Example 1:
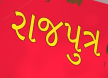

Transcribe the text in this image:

રાજપુત્ર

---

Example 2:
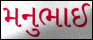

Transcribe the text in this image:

મનુભાઈ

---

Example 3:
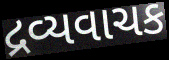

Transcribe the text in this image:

દ્રવ્યવાચક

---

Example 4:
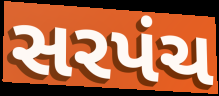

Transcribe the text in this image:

સરપંચ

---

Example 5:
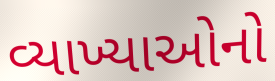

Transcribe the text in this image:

વ્યાખ્યાઓનો